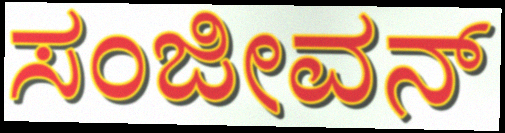
ಸಂಜೀವನ್